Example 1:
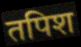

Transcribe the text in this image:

तपिश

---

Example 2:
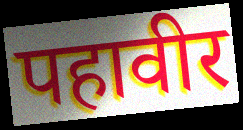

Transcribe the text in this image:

पहावीर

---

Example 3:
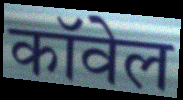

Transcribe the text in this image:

कॉवेल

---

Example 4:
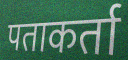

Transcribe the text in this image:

पताकर्ता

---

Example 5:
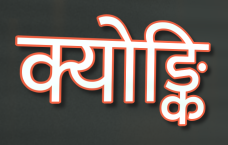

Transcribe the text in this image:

क्योङ्कि